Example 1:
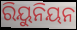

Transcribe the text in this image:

ରିୟୁନିୟନ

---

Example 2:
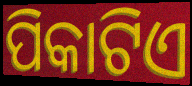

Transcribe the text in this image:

ପିକାଟିଏ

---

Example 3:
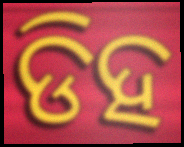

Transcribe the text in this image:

ଡିହ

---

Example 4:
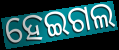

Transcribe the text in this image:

ହେଇଗଲ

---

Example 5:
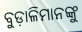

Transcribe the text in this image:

ବୁଡ଼ାଳିମାନଙ୍କୁ